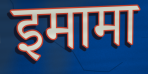
इमामा